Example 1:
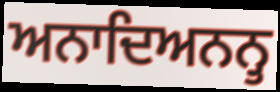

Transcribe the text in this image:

ਅਨਾਦਿਅਨਨ੍ਤ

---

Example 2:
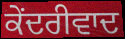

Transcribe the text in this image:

ਕੇਂਦਰੀਵਾਦ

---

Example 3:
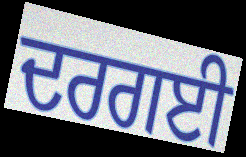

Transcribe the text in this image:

ਦਰਗਈ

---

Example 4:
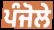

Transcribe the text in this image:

ਪੰਜੋਲੇ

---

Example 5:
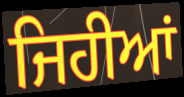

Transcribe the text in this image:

ਜਿਹੀਆਂ